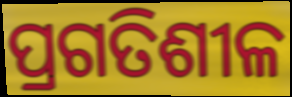
ପ୍ରଗତିଶୀଳ